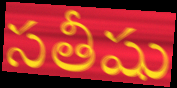
సతీషు